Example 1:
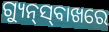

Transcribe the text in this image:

ଗ୍ୟୁନ୍‍ସ୍‍ବାଖରେ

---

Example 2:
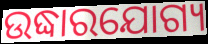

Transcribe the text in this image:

ଉଦ୍ଧାରଯୋଗ୍ୟ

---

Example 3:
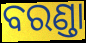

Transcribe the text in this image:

ବରଣ୍ଡା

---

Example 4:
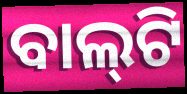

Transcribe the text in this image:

ବାଲ୍‍ଟି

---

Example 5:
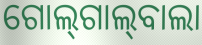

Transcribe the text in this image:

ଗୋଲ୍‍ଗାଲ୍‍ବାଲା